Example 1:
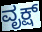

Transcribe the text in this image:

ವೃಕ್ಷ್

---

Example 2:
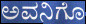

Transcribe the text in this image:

ಅವನಿಗೊ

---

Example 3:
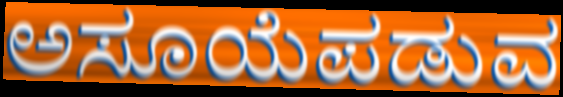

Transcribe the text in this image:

ಅಸೂಯೆಪಡುವ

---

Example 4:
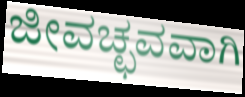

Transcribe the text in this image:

ಜೀವಚ್ಛವವಾಗಿ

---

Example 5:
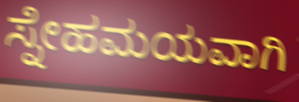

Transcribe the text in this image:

ಸ್ನೇಹಮಯವಾಗಿ